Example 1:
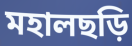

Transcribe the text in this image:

মহালছড়ি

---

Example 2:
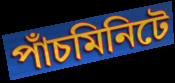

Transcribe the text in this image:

পাঁচমিনিটে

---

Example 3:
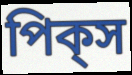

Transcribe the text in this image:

পিক্‌স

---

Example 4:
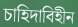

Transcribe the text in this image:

চাহিদাবিহীন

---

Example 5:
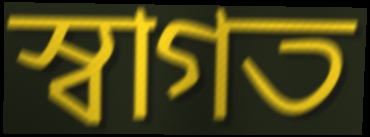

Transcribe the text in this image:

স্বাগত